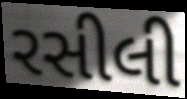
રસીલી